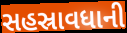
સહસ્રાવધાની